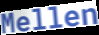
Mellen